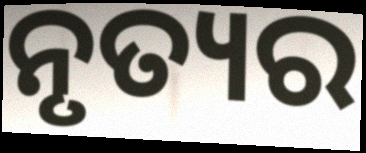
ନୃତ୍ୟର